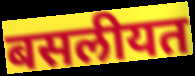
बसलीयत